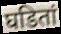
घडितां